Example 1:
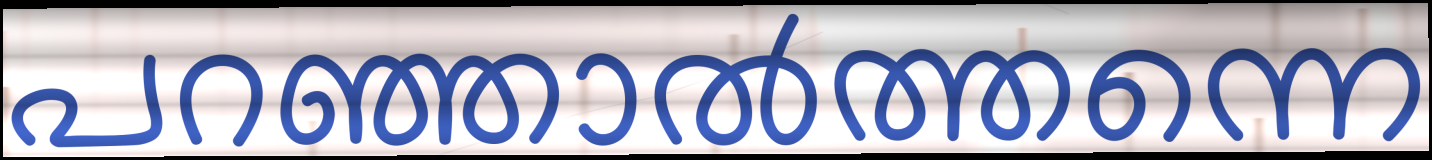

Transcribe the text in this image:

പറഞ്ഞാൽത്തന്നെ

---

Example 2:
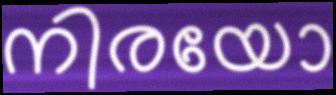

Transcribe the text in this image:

നിരയോ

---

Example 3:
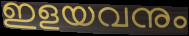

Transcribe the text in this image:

ഇളയവനും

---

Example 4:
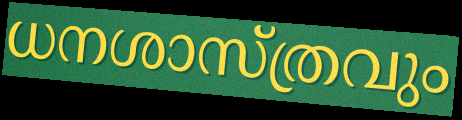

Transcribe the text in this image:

ധനശാസ്ത്രവും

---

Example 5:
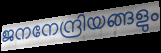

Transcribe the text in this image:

ജനനേന്ദ്രിയങ്ങളും